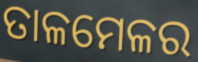
ତାଳମେଳର